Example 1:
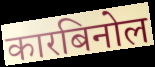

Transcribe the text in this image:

कारबिनोल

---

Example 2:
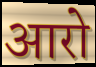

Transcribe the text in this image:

आरो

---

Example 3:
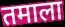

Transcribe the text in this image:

तमाला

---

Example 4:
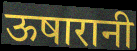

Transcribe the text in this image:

ऊषारानी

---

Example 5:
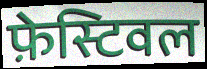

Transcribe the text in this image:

फ़ेस्टिवल